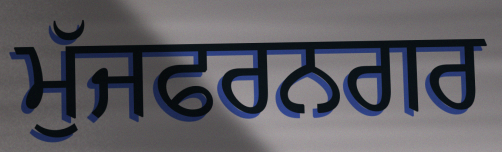
ਮੁੱਜਫਰਨਗਰ